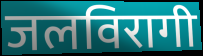
जलविरागी